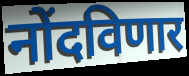
नोंदविणार